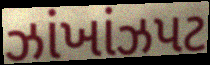
ઝાંખાંઝપટ